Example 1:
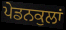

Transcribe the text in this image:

ਪੇਡਨਕੁਲਾਂ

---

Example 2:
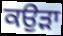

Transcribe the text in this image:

ਕਉੜਾ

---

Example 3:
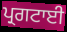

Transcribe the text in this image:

ਪ੍ਰਗਟਾਈ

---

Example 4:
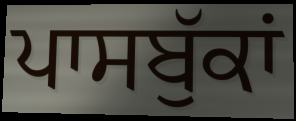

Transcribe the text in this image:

ਪਾਸਬੁੱਕਾਂ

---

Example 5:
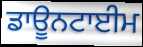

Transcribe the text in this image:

ਡਾਊਨਟਾਈਮ